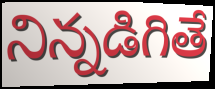
నిన్నడిగితే